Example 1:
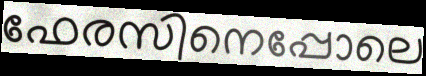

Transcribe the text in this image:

ഫേരസിനെപ്പോലെ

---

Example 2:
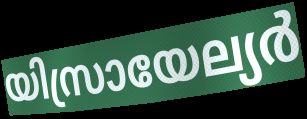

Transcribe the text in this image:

യിസ്രായേല്യർ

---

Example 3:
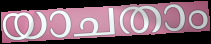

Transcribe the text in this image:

യാചതാം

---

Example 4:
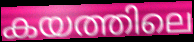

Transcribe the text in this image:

കയത്തിലെ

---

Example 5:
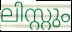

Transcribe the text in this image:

ലിസ്റ്റും